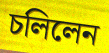
চলিলেন